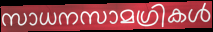
സാധനസാമഗ്രികൾ